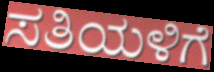
ಸತಿಯಳಿಗೆ